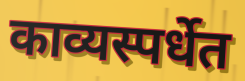
काव्यस्पर्धेत